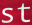
st